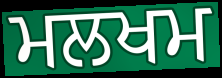
ਮਲਖਮ